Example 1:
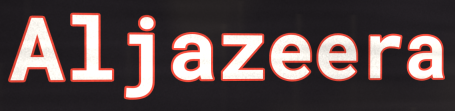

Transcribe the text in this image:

Aljazeera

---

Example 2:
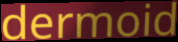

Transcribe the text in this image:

dermoid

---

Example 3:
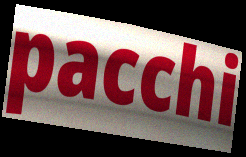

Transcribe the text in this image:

pacchi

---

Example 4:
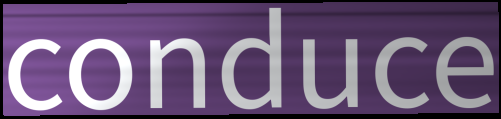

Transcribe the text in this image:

conduce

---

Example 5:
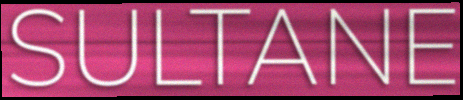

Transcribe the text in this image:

SULTANE